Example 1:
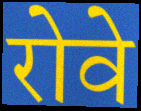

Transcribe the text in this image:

रोवे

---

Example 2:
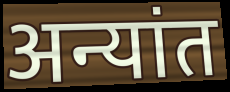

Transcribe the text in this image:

अन्यांत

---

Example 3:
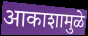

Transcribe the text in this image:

आकाशामुळे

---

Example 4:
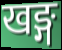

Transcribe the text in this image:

खङ्ग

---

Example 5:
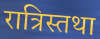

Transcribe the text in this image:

रात्रिस्तथा